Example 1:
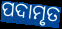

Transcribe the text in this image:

ପଦାମୃତ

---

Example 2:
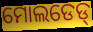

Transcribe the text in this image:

ମୋଲଡେଡ୍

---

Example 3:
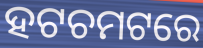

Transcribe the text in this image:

ହଟଚମଟରେ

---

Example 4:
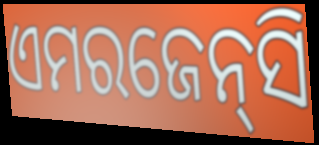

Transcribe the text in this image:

ଏମରଜେନ୍‌ସି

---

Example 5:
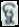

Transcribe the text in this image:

ଡୁ